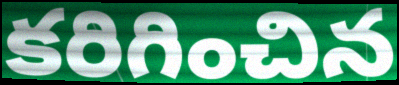
కరిగించిన